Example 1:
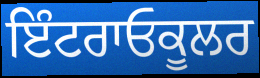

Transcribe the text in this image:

ਇੰਟਰਾਓਕੂਲਰ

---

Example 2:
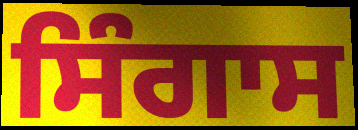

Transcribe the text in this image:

ਸਿੰਗਾਸ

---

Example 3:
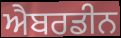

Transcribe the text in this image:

ਐਬਰਡੀਨ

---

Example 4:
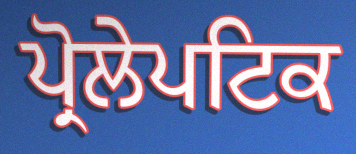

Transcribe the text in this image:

ਪ੍ਰੋਲੇਪਟਿਕ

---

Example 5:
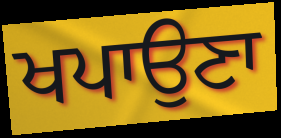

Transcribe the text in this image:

ਖਪਾਉਣਾ